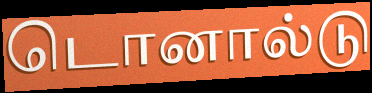
டொனால்டு